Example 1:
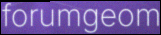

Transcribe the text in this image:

forumgeom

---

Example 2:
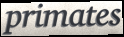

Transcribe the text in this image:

primates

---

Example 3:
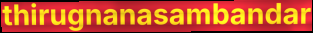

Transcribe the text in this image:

thirugnanasambandar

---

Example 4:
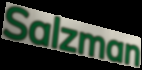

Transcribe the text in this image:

Salzman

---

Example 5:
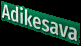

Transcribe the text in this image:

Adikesava